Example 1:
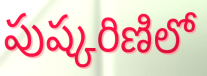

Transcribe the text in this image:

పుష్కరిణిలో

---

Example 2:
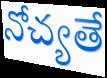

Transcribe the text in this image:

నోచ్యతే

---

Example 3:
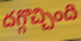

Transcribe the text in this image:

దగ్గొచ్చింది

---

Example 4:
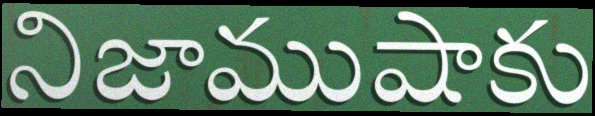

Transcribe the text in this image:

నిజాముషాకు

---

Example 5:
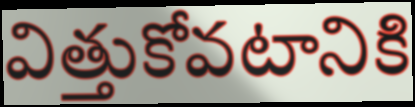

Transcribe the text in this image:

విత్తుకోవటానికి